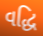
વદ્ધિ